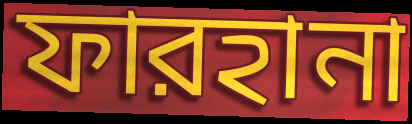
ফারহানা